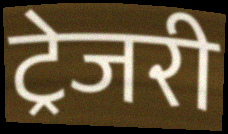
ट्रेजरी